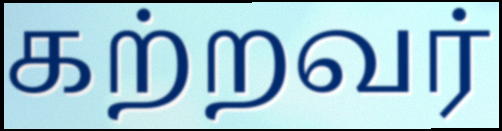
கற்றவர்